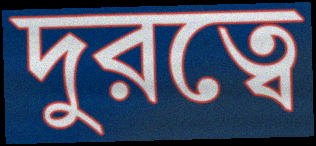
দুরত্বে